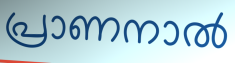
പ്രാണനാൽ